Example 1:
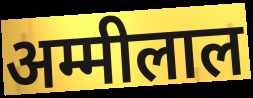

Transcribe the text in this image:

अम्मीलाल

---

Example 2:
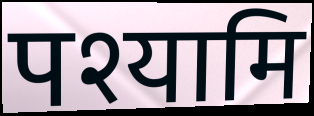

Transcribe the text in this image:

पश्यामि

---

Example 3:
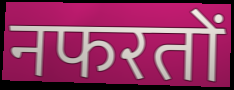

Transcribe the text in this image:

नफरतों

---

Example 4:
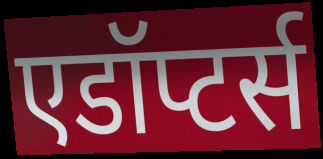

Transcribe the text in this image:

एडॉप्टर्स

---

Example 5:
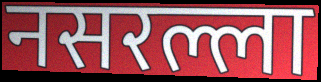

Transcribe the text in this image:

नसरल्ला